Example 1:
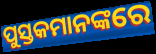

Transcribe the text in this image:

ପୁସ୍ତକମାନଙ୍କରେ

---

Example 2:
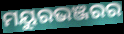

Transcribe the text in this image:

ମୟୁରଭଞ୍ଜରର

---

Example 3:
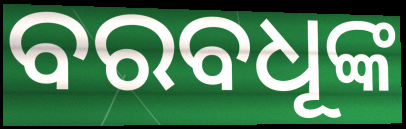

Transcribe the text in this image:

ବରବଧୂଙ୍କ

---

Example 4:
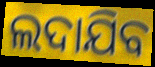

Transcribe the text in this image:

ଲଦାଯିବ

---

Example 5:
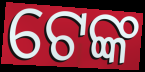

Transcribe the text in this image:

ଟେଙ୍କ